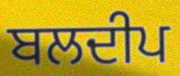
ਬਲਦੀਪ